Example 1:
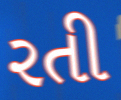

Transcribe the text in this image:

રતી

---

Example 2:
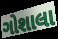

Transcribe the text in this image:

ગોશાલા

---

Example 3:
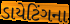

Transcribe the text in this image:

ડાયેટિંગના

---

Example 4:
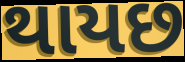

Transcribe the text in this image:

થાયછ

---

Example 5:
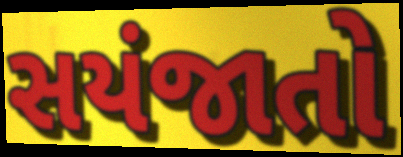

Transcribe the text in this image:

સયંજાતો